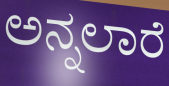
ಅನ್ನಲಾರೆ